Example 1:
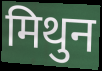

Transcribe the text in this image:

मिथुन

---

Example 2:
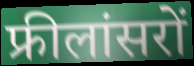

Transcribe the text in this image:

फ्रीलांसरों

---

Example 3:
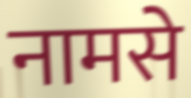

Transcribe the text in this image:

नामसे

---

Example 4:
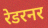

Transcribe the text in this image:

रेडरनर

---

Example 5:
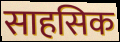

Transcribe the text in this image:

साहसिक